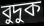
বুদুক